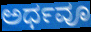
ಅರ್ಧವೂ